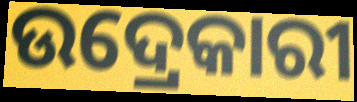
ଉଦ୍ରେକାରୀ